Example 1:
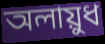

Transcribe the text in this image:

অলায়ুধ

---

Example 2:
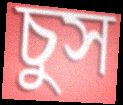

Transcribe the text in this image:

চুস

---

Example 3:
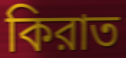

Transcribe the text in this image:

কিরাত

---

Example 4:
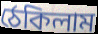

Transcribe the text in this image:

ঠেকিলাম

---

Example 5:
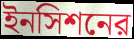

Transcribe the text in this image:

ইনসিশনের